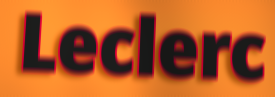
Leclerc